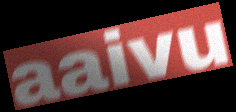
aaivu